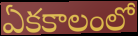
ఏకకాలంలో